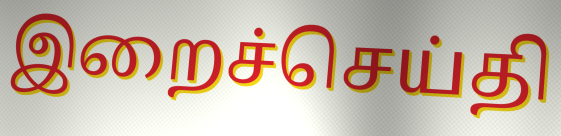
இறைச்செய்தி